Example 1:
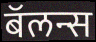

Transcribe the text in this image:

बॅलन्स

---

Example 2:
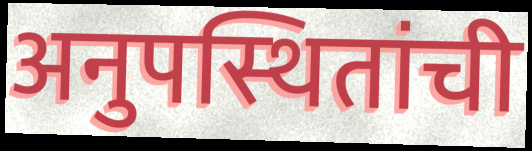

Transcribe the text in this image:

अनुपस्थितांची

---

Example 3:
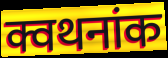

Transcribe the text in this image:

क्वथनांक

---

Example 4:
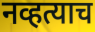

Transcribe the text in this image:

नव्हत्याच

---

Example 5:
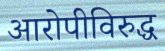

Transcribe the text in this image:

आरोपीविरुद्ध